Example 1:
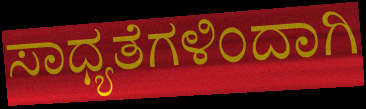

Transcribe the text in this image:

ಸಾಧ್ಯತೆಗಳಿಂದಾಗಿ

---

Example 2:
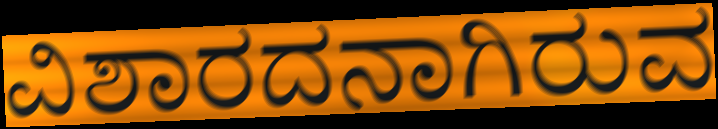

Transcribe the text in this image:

ವಿಶಾರದನಾಗಿರುವ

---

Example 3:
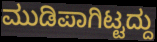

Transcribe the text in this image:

ಮುಡಿಪಾಗಿಟ್ಟದ್ದು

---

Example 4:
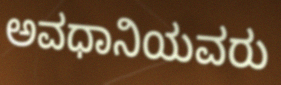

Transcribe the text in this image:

ಅವಧಾನಿಯವರು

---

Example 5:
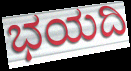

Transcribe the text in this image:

ಭಯದಿ